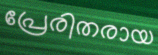
പ്രേരിതരായ